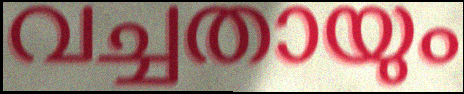
വച്ചതായും